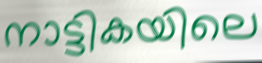
നാട്ടികയിലെ